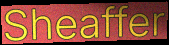
Sheaffer